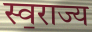
स्व॒राज्य